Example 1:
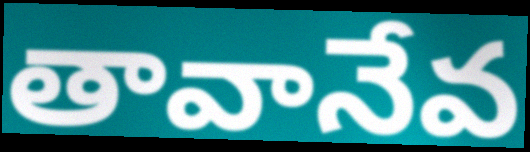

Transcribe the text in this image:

తావానేవ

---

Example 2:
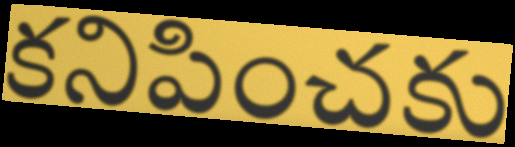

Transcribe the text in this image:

కనిపించకు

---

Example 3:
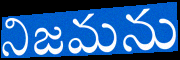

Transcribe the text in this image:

నిజమను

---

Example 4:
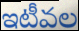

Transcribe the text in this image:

ఇటీవల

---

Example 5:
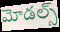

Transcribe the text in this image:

మోడల్స్